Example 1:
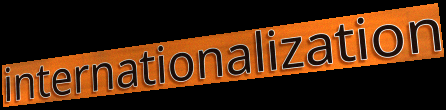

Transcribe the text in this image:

internationalization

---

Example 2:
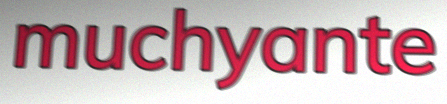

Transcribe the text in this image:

muchyante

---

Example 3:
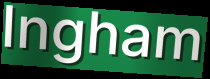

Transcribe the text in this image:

Ingham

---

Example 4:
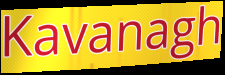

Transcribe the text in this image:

Kavanagh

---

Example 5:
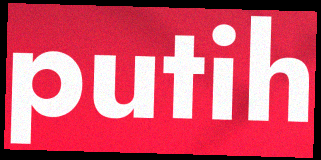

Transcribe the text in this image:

putih